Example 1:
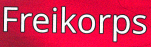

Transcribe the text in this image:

Freikorps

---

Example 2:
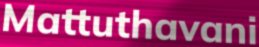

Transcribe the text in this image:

Mattuthavani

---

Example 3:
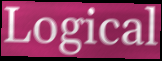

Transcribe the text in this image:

Logical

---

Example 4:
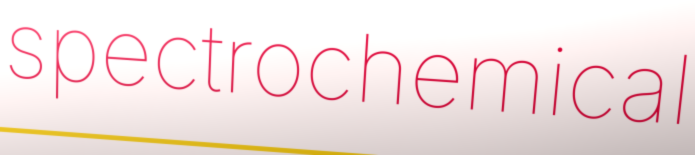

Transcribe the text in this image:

spectrochemical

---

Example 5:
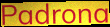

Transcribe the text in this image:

Padrona